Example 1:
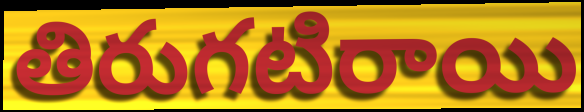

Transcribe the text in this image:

తిరుగటిరాయి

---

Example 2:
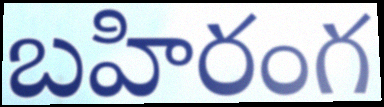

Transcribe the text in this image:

బహిరంగ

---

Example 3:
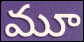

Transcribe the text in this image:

మూ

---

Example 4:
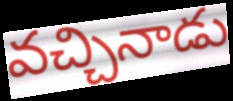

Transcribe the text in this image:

వచ్చినాడు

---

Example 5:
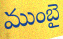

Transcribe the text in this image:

ముంబై